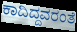
ಕಾದಿದ್ದವರಂತೆ